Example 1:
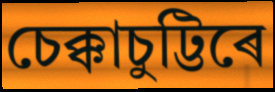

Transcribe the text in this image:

চেক্কাচুট্টিৰে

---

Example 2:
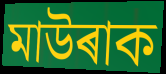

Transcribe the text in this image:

মাউৰাক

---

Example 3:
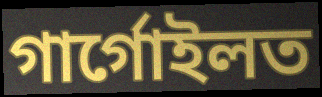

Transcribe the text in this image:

গাৰ্গোইলত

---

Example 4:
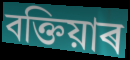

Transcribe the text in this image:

বক্তিয়াৰ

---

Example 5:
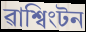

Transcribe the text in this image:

ৱাশ্বিংটন